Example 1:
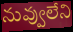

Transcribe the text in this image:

నువ్వులేని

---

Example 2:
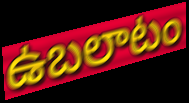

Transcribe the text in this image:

ఉబలాటం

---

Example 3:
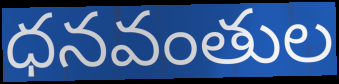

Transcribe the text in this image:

ధనవంతుల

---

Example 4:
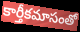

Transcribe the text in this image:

కార్తీకమాసంతో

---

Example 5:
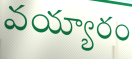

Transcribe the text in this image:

వయ్యారం